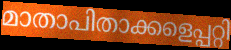
മാതാപിതാക്കളെപ്പറ്റി